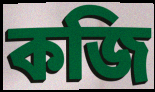
কজি